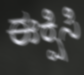
ಈಕ್ಷಿಸಿ